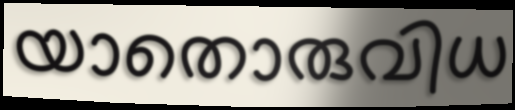
യാതൊരുവിധ